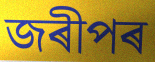
জৰীপৰ